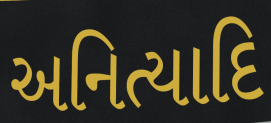
અનિત્યાદિ